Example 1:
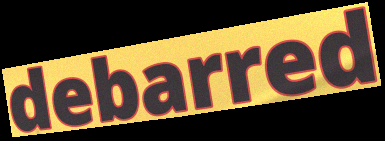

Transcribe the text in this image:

debarred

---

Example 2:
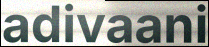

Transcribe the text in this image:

adivaani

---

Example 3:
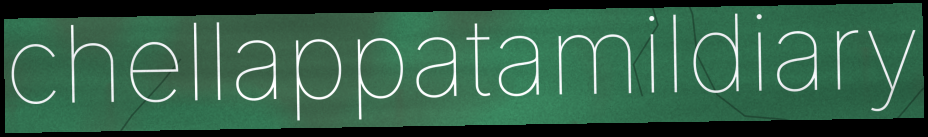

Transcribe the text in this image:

chellappatamildiary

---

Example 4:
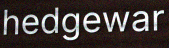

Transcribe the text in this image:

hedgewar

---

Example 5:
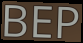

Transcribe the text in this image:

BEP